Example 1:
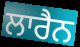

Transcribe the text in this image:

ਲਾਰੈਨ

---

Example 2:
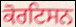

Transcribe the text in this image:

ਕੋਰਟਿਸਨ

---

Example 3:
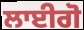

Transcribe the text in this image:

ਲਾਈਗੋ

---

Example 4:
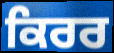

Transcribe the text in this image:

ਕਿਰਰ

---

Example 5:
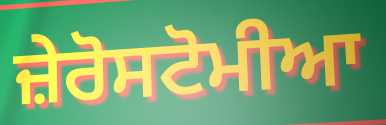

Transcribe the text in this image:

ਜ਼ੇਰੋਸਟੋਮੀਆ